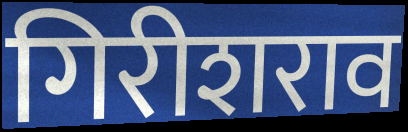
गिरीशराव